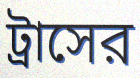
ট্রাসের